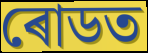
ৰোডত